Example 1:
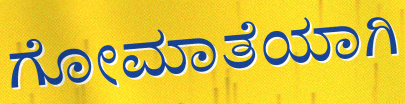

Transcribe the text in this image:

ಗೋಮಾತೆಯಾಗಿ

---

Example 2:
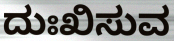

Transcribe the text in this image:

ದುಃಖಿಸುವ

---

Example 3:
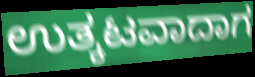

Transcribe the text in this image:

ಉತ್ಕಟವಾದಾಗ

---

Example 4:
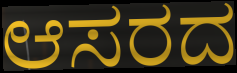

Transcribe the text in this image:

ಆಸರದ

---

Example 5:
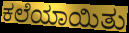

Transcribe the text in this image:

ಕಲೆಯಾಯಿತು